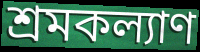
শ্রমকল্যাণ